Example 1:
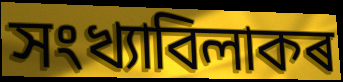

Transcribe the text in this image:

সংখ্যাবিলাকৰ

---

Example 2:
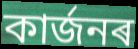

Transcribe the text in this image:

কাৰ্জনৰ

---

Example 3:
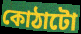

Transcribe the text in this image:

কোঠাটো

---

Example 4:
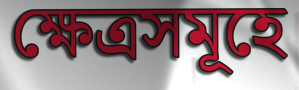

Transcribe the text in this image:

ক্ষেত্ৰসমূহে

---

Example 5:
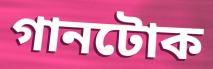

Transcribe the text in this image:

গানটোক